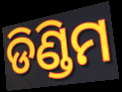
ଡିଣ୍ଡିମ